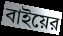
বাইয়ের